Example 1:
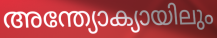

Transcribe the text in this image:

അന്ത്യോക്യായിലും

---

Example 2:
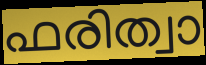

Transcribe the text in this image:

ഫരിത്വാ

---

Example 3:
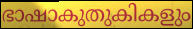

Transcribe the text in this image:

ഭാഷാകുതുകികളും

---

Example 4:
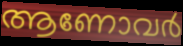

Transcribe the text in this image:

ആണോവർ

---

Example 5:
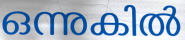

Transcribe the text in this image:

ഒന്നുകിൽ